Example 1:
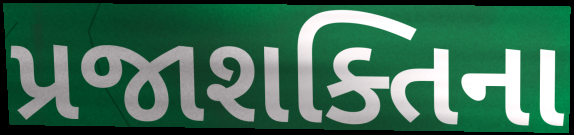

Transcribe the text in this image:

પ્રજાશક્તિના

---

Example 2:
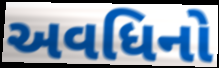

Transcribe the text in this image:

અવધિનો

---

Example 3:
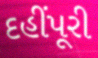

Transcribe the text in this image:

દહીંપૂરી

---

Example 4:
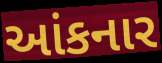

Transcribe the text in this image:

આંકનાર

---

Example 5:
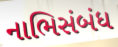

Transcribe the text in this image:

નાભિસંબંધ